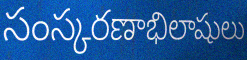
సంస్కరణాభిలాషులు